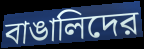
বাঙালিদের